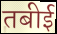
तबीई